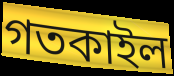
গতকাইল